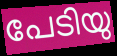
പേടിയു